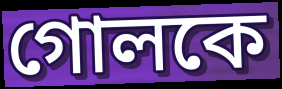
গোলকে